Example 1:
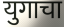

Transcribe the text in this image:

युगाचा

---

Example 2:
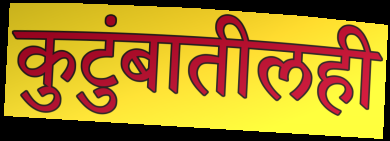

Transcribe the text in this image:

कुटुंबातीलही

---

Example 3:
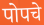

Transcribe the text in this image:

पोपचे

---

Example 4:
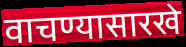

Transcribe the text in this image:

वाचण्यासारखे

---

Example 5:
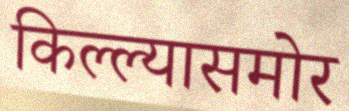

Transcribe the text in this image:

किल्ल्यासमोर